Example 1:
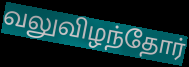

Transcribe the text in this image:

வலுவிழந்தோர்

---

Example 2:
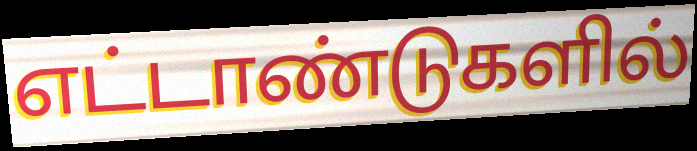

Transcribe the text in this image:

எட்டாண்டுகளில்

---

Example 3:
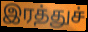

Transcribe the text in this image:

இரத்துச்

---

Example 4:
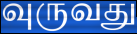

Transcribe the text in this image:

வுருவது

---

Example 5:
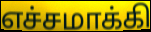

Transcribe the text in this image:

எச்சமாக்கி